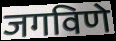
जगविणे